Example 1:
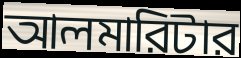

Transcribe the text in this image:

আলমারিটার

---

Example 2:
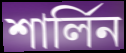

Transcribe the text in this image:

শার্লিন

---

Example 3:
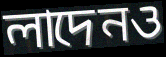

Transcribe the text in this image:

লাদেনও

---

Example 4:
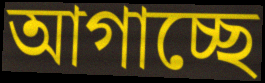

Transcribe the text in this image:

আগাচ্ছে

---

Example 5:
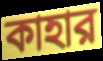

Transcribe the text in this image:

কাহার